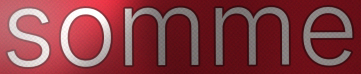
somme